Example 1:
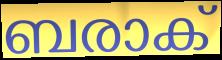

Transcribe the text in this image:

ബരാക്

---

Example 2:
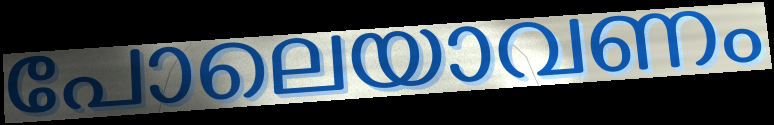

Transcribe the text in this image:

പോലെയാവണം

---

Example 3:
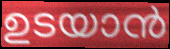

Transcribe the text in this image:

ഉടയാൻ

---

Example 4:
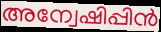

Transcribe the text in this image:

അന്വേഷിപ്പിൻ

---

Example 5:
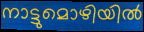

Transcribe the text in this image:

നാട്ടുമൊഴിയിൽ